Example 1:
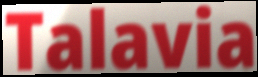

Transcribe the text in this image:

Talavia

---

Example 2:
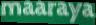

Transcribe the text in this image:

maaraya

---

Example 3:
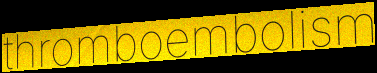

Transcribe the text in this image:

thromboembolism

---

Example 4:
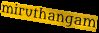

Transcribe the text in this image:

miruthangam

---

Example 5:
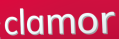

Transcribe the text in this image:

clamor